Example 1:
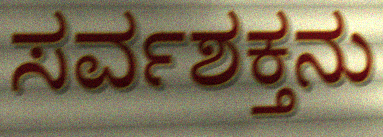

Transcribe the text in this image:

ಸರ್ವಶಕ್ತನು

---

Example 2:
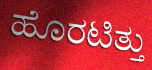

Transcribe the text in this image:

ಹೊರಟಿತ್ತು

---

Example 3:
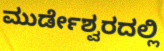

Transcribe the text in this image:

ಮುರ್ಡೇಶ್ವರದಲ್ಲಿ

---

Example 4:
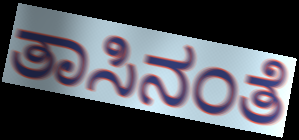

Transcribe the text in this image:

ತಾಸಿನಂತೆ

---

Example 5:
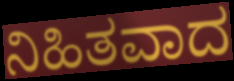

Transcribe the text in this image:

ನಿಹಿತವಾದ